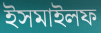
ইসমাইলফ